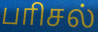
பரிசல்